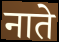
नाते